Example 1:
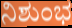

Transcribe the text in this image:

ನಿಶುಂಭ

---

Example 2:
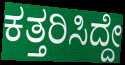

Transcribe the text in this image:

ಕತ್ತರಿಸಿದ್ದೇ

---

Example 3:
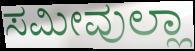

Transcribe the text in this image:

ಸಮೀವುಲ್ಲಾ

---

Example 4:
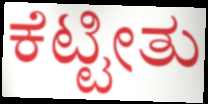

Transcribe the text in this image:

ಕೆಟ್ಟೀತು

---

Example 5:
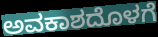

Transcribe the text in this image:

ಅವಕಾಶದೊಳಗೆ